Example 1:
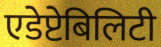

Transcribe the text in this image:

एडेप्टेबिलिटी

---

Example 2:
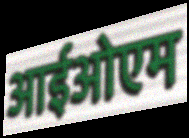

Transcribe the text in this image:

आईओएम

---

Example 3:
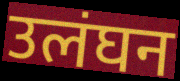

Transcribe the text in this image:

उलंघन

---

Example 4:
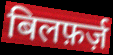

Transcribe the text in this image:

बिलफ़र्ज़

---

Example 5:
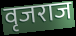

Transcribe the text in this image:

वृजराज